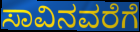
ಸಾವಿನವರೆಗೆ